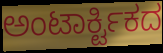
ಅಂಟಾರ್ಕ್ಟಿಕದ